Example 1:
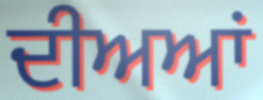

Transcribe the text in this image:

ਦੀਅਆਂ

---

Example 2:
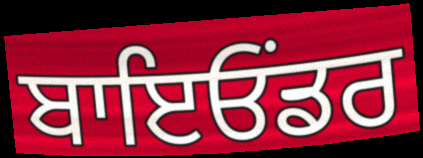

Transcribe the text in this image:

ਬਾਇਓਂਡਰ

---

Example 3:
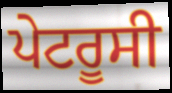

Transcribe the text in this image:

ਪੇਟਰੂਸੀ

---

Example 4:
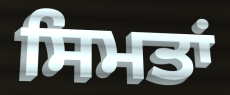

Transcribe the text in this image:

ਸਿਮਤਾਂ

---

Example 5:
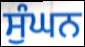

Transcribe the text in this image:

ਸੁੰਘਨ